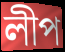
লীপ